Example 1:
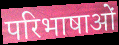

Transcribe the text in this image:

परिभाषाओं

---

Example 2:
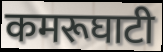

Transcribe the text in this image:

कमरूघाटी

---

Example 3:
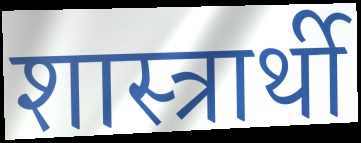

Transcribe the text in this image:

शास्त्रार्थी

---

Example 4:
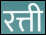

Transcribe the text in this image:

रत्ती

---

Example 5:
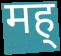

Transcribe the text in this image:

मह्